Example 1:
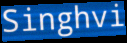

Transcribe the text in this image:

Singhvi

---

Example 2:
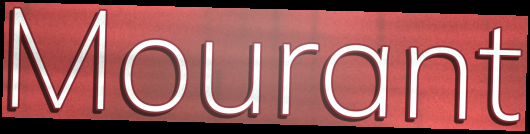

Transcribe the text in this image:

Mourant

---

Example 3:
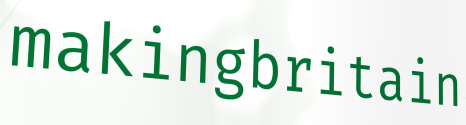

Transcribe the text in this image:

makingbritain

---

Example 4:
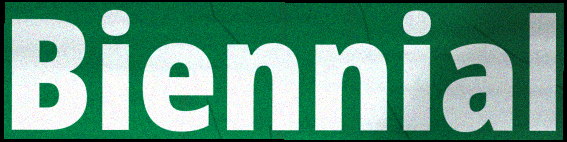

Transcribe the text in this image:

Biennial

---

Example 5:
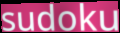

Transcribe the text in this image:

sudoku